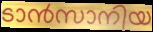
ടാൻസാനിയ